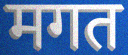
मगत